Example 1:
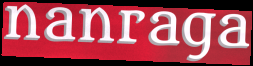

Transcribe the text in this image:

nanraga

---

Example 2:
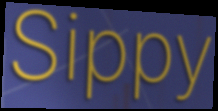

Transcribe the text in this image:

Sippy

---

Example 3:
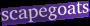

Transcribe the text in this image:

scapegoats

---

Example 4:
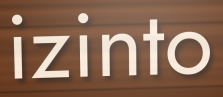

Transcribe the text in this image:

izinto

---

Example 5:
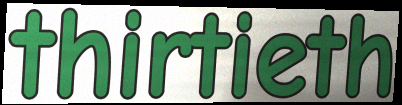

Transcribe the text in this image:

thirtieth